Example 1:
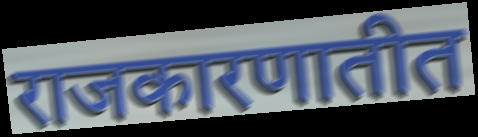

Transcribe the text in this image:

राजकारणातीत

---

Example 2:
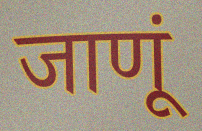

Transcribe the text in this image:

जाणूं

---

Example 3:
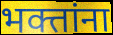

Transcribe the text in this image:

भक्तांना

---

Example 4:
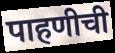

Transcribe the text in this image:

पाहणीची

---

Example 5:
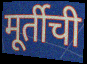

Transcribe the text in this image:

मूर्तीची